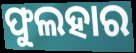
ଫୁଲହାର